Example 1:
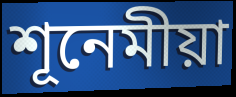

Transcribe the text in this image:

শূনেমীয়া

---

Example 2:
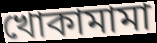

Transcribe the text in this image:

খোকামামা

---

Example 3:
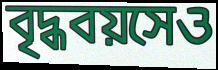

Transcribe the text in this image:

বৃদ্ধবয়সেও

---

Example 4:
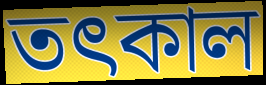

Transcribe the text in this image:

তৎকাল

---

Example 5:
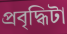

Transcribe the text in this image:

প্রবৃদ্ধিটা